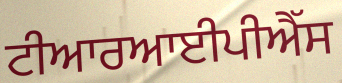
ਟੀਆਰਆਈਪੀਐੱਸ